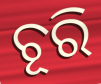
ଚୂରି